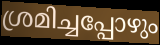
ശ്രമിച്ചപ്പോഴും